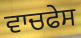
ਵਾਚਫੇਸ